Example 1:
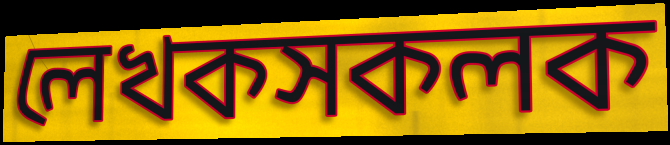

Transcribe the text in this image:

লেখকসকলক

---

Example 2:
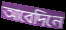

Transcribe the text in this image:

আবেদিনে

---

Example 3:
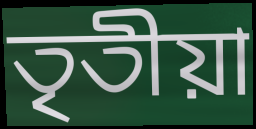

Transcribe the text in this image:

তৃতীয়া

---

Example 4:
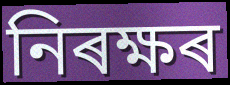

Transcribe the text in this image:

নিৰক্ষৰ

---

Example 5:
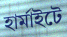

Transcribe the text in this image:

হাৰ্মাইটে